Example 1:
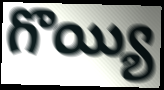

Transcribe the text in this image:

గొయ్యి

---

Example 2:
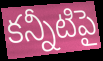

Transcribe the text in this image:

కన్నీటిపై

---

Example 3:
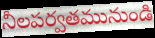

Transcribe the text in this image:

నీలపర్వతమునుండి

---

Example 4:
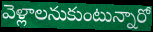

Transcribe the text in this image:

వెళ్లాలనుకుంటున్నారో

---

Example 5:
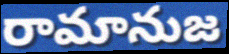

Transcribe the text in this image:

రామానుజ